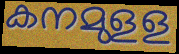
കനമുളള